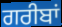
ਗਰੀਬਾਂ